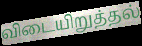
விடையிறுத்தல்